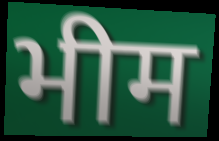
भीम